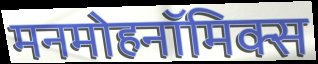
मनमोहनॉमिक्स